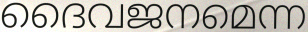
ദൈവജനമെന്ന